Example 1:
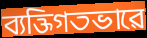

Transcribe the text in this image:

ব্যক্তিগতভাৱে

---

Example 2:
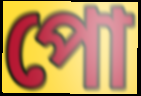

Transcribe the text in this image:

পো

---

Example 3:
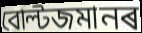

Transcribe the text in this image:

বোল্টজমানৰ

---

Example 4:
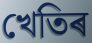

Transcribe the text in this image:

খেতিৰ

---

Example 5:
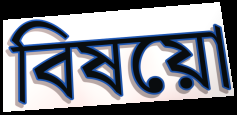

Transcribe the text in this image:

বিষয়ো